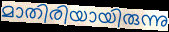
മാതിരിയായിരുന്നു